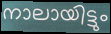
നാലായിട്ടും